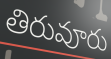
తిరువూరు